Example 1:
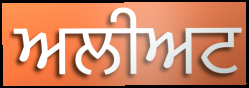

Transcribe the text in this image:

ਅਲੀਅਟ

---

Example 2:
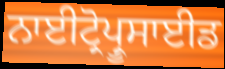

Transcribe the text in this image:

ਨਾਈਟ੍ਰੋਪ੍ਰੂਸਾਈਡ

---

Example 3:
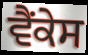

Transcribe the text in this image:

ਵੈਂਕੇਸ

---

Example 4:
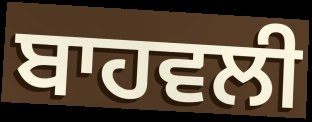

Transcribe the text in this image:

ਬਾਹਵਲੀ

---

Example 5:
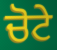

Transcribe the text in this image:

ਚੋਟੇ